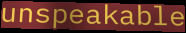
unspeakable